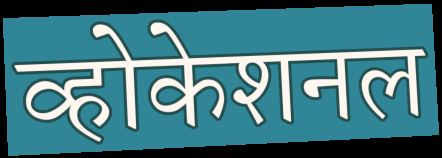
व्होकेशनल